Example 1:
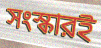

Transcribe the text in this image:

সংস্কারই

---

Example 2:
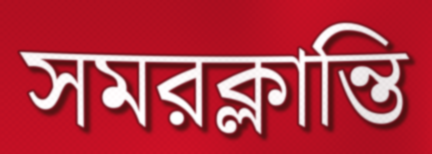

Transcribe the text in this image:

সমরক্লান্তি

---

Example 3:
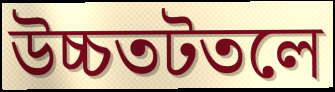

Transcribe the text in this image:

উচ্চতটতলে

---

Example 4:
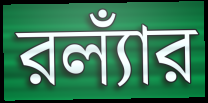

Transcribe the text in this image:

রল্যাঁর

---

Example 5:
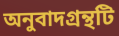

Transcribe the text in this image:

অনুবাদগ্রন্থটি